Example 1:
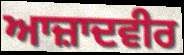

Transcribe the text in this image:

ਆਜ਼ਾਦਵੀਰ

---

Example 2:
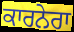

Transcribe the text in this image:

ਕਾਰਨੇਰਾ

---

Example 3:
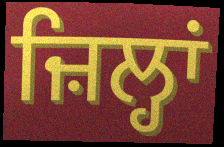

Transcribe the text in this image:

ਜ਼ਿਲ੍ਹਾਂ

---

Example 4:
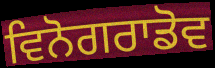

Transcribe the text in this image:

ਵਿਨੋਗਰਾਡੋਵ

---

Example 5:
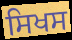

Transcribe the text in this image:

ਸਿਖਸ